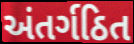
અંતર્ગઠિત